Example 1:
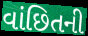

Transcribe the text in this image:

વાંછિતની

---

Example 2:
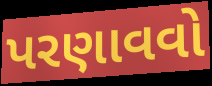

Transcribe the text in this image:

પરણાવવો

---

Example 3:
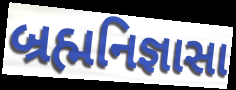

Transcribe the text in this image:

બ્રહ્મનિજ્ઞાસા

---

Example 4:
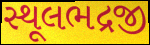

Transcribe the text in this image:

સ્થૂલભદ્રજી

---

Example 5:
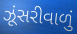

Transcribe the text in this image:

ઝૂંસરીવાળું